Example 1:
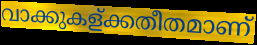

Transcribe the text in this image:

വാക്കുകള്ക്കതീതമാണ്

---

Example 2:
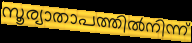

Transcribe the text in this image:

സൂര്യാതാപത്തിൽനിന്ന്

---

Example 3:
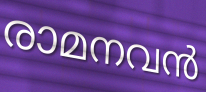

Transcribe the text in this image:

രാമനവൻ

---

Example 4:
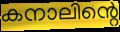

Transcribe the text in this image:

കനാലിന്റെ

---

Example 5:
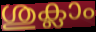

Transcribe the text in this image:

ശുക്ലാം